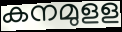
കനമുളള